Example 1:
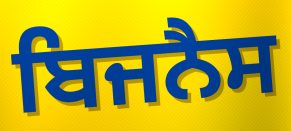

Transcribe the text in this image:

ਬਿਜਨੈਸ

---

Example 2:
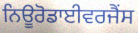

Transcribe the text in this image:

ਨਿਊਰੋਡਾਈਵਰਜੈਂਸ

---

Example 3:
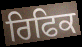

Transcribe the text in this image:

ਰਿਫਿਕ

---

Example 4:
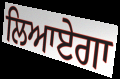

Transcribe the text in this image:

ਲਿਆਏਗਾ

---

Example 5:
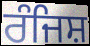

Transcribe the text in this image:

ਰੰਜਿਸ਼